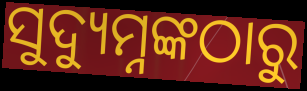
ସୁଦ୍ୟୁମ୍ନଙ୍କଠାରୁ